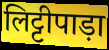
लिट्टीपाड़ा